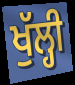
ਖੁੱਲ੍ਹੀ